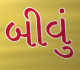
બીવું